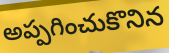
అప్పగించుకొనిన